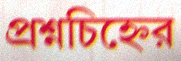
প্রশ্নচিহ্নের